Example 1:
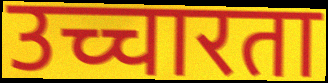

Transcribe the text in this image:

उच्चारता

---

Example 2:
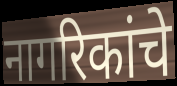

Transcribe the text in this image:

नागरिकांचे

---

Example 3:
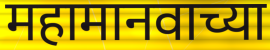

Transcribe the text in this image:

महामानवाच्या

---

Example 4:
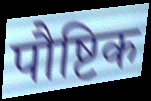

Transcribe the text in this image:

पौष्टिक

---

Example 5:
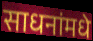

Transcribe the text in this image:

साधनांमधे